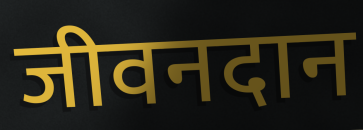
जीवनदान